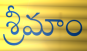
శ్రీమాం